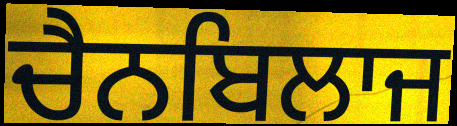
ਚੈਨਬਿਲਾਜ